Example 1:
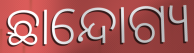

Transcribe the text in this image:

ଛାନ୍ଦୋଗ୍ୟ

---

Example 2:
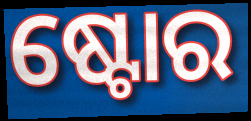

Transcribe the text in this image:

ଷ୍ଟୋର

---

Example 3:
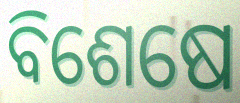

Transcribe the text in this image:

ବିଶେଷେ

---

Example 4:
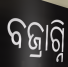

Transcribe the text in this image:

ବଜ୍ରାଗ୍ନି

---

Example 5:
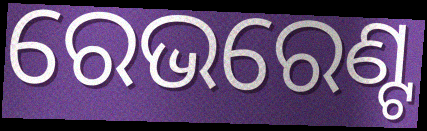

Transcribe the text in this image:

ରେଭରେଣ୍ଟ